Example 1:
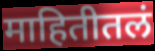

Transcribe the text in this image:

माहितीतलं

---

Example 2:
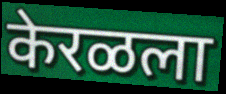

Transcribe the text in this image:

केरळला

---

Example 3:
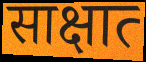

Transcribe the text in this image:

साक्षात्‍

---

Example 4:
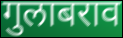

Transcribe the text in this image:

गुलाबराव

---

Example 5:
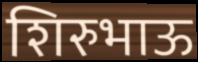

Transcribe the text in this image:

शिरुभाऊ